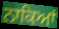
ਨਾਕਿਆਂ